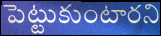
పెట్టుకుంటారని